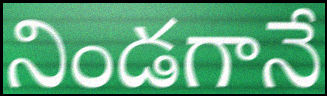
నిండగానే